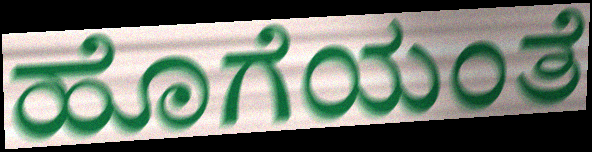
ಹೊಗೆಯಂತೆ